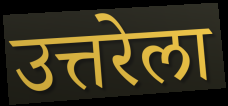
उत्तरेला